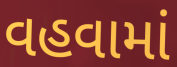
વહવામાં